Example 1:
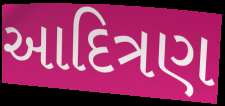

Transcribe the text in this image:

આદિત્રણ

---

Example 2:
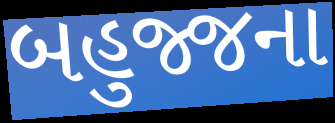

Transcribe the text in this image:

બહુજ્જના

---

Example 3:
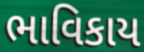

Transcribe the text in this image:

ભાવિકાય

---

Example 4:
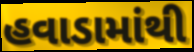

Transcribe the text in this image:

હવાડામાંથી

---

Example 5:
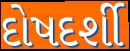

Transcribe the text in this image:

દોષદર્શી